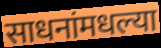
साधनांमधल्या